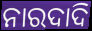
ନାରଦାଦି